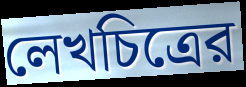
লেখচিত্রের